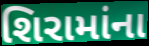
શિરામાંના